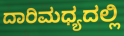
ದಾರಿಮಧ್ಯದಲ್ಲಿ